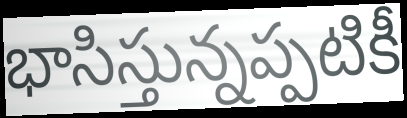
భాసిస్తున్నప్పటికీ